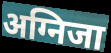
अग्निजा